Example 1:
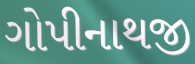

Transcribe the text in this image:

ગોપીનાથજી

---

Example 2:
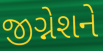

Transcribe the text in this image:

જીગ્નેશને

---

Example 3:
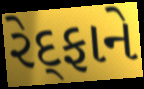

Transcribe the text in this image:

રેદ્ફાને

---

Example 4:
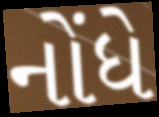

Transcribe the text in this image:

નોંધે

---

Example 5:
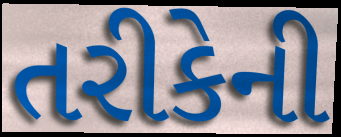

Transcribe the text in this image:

તરીકેની